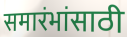
समारंभांसाठी